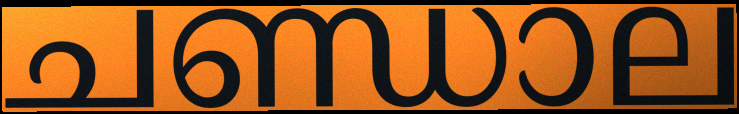
ചണ്ഡാല